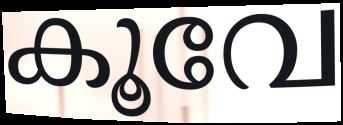
കൂവേ